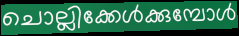
ചൊല്ലിക്കേൾക്കുമ്പോൾ